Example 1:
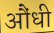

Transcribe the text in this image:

औंधी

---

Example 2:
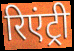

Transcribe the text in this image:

रिएंट्री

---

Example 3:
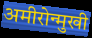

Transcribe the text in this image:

अमीरोन्मुखी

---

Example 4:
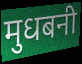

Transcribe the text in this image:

मुधबनी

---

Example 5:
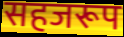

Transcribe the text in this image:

सहजरूप